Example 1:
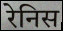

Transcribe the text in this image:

रेनिस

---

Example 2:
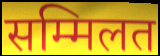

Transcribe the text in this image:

सम्मिलत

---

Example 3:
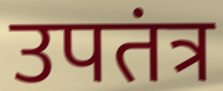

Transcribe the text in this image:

उपतंत्र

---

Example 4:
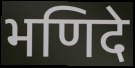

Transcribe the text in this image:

भणिदे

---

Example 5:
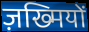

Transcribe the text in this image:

ज़ख्मियों